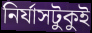
নির্যাসটুকুই